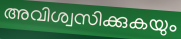
അവിശ്വസിക്കുകയും